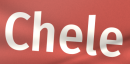
Chele